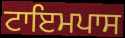
ਟਾਇਮਪਾਸ